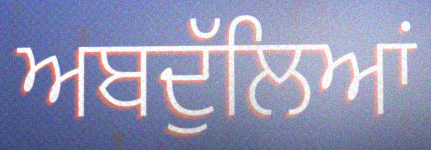
ਅਬਦੁੱਲਿਆਂ